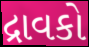
દ્રાવકો